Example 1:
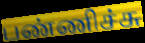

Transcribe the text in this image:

பண்ணிச்சு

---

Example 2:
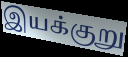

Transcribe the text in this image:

இயக்குறு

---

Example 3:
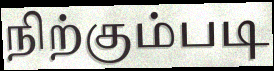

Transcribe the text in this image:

நிற்கும்படி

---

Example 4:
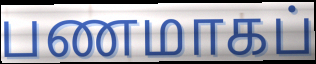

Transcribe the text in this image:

பணமாகப்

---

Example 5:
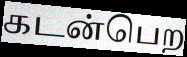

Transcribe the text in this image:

கடன்பெற